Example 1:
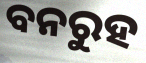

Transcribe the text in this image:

ବନରୁହ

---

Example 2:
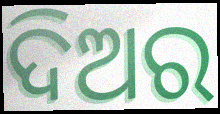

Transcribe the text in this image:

ଦିଅର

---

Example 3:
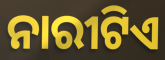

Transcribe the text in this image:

ନାରୀଟିଏ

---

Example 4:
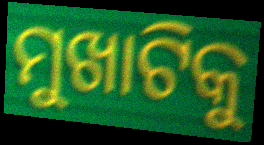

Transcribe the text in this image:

ମୁଖାଟିକୁ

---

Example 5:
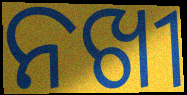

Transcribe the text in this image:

ନଖୀ